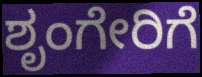
ಶೃಂಗೇರಿಗೆ